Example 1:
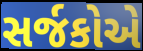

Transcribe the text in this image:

સર્જકોએ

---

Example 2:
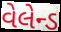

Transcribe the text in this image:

વેલેન્ડ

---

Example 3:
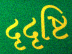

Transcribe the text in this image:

દૃદૃષ્ટિ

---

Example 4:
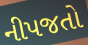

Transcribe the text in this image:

નીપજતો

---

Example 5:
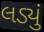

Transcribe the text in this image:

લડ્યું